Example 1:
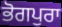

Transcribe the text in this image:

ਭੋਗਪੁਰਾ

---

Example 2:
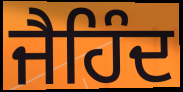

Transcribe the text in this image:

ਜੈਹਿੰਦ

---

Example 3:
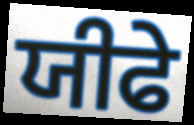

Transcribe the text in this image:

ਯੀਫੇ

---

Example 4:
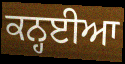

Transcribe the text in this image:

ਕਨ੍ਹਈਆ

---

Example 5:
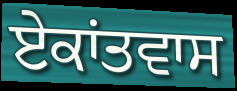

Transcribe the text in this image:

ਏਕਾਂਤਵਾਸ